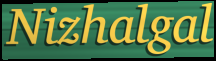
Nizhalgal